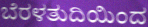
ಬೆರಳತುದಿಯಿಂದ